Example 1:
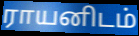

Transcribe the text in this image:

ராயனிடம்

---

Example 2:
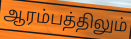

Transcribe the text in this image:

ஆரம்பத்திலும்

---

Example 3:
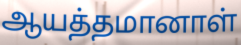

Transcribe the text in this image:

ஆயத்தமானாள்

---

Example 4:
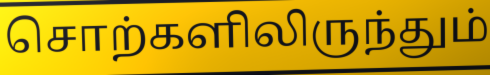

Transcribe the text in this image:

சொற்களிலிருந்தும்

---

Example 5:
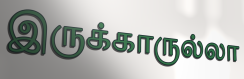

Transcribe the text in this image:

இருக்காருல்லா